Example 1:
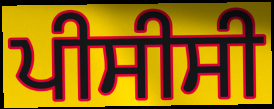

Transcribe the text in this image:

ਪੀਸੀਸੀ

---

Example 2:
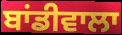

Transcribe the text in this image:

ਬਾਂਡੀਵਾਲਾ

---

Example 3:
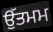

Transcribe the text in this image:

ਉੱਤਮਮ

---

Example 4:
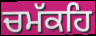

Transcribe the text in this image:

ਚਮੱਕਹਿ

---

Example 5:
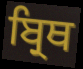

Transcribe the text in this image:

ਬ੍ਰਿਥ